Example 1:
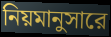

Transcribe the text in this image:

নিয়মানুসারে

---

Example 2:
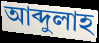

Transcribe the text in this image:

আব্দুলাহ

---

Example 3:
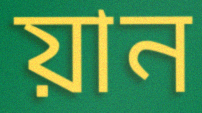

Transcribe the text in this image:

য়ান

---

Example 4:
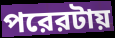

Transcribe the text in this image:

পরেরটায়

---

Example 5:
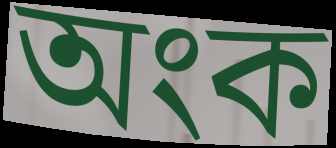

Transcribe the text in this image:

অংক